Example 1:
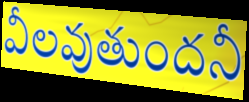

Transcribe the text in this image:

వీలవుతుందనీ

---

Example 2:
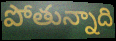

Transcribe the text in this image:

పోతున్నాది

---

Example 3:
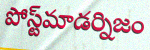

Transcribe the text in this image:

పోస్ట్‌మాడర్నిజం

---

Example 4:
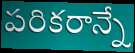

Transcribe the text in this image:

పరికరాన్నే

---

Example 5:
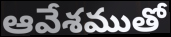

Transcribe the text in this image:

ఆవేశముతో